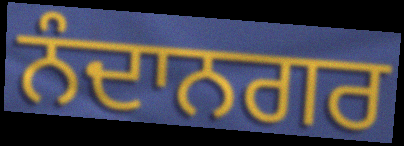
ਨੰਦਾਨਗਰ